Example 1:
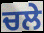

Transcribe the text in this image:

ਚਲੇ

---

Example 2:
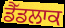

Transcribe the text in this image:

ਡੈੱਡਲਾਕ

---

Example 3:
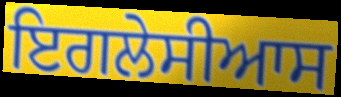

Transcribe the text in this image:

ਇਗਲੇਸੀਆਸ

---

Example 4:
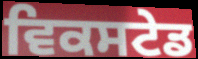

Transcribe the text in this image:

ਵਿਕਸਟੇਡ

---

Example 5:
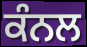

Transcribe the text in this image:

ਕੰਨਲ